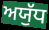
ਅਯੁੱਧ